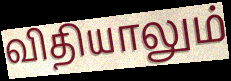
விதியாலும்